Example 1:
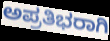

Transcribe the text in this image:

ಅಪ್ರತಿಭರಾಗಿ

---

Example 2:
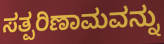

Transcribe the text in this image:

ಸತ್ಪರಿಣಾಮವನ್ನು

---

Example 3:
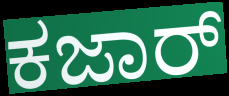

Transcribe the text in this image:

ಕಜಾರ್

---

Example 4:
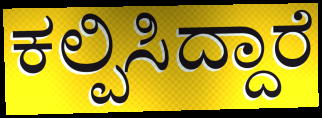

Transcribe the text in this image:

ಕಲ್ಪಿಸಿದ್ದಾರೆ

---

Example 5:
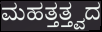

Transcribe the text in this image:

ಮಹತ್ತತ್ತ್ವದ